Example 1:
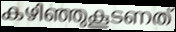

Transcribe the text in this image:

കഴിഞ്ഞുകൂടണത്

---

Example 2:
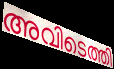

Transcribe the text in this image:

അവിടെത്തി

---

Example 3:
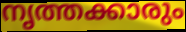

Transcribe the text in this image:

നൃത്തക്കാരും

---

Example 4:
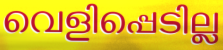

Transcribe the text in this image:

വെളിപ്പെടില്ല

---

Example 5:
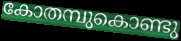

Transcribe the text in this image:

കോതമ്പുകൊണ്ടു